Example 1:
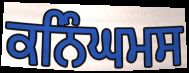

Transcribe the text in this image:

ਕਨਿੰਘਮਸ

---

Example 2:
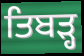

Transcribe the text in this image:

ਤਿਬੜ੍ਹ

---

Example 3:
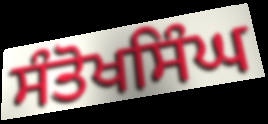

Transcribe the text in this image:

ਸੰਤੋਖਸਿੰਘ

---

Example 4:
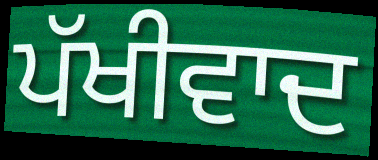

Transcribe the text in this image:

ਪੱਖੀਵਾਦ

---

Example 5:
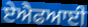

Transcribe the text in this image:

ਏਐਫਆਈ